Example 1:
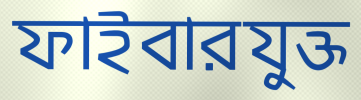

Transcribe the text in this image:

ফাইবারযুক্ত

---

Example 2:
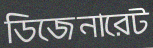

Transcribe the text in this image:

ডিজেনারেট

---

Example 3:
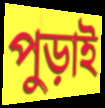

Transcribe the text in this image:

পুড়াই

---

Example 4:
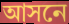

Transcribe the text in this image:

আসনে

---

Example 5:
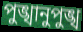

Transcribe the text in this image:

পুঙ্খানুপুঙ্খ